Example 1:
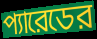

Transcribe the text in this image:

প্যারেডের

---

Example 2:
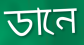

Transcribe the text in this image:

ডানে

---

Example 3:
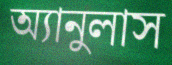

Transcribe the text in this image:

অ্যানুলাস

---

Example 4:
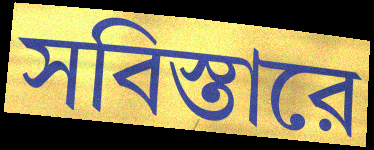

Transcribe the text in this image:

সবিস্তারে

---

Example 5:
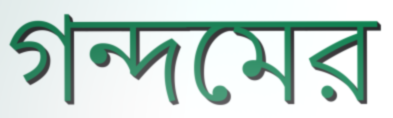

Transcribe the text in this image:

গন্দমের